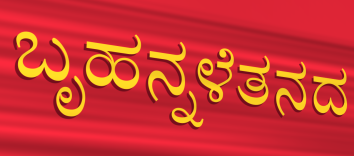
ಬೃಹನ್ನಳೆತನದ